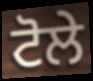
ਟੋਲੇ